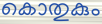
കൊതുകും